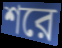
শরে